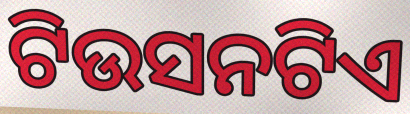
ଟିଉସନଟିଏ